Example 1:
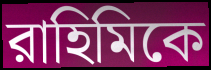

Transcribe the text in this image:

রাহিমিকে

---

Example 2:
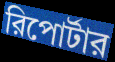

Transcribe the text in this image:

রিপোর্টার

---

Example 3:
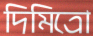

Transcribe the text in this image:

দিমিত্রো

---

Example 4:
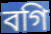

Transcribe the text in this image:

বগি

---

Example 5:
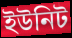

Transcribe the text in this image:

ইউনিট